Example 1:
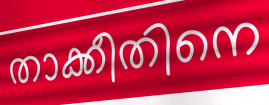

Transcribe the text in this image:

താക്കീതിനെ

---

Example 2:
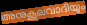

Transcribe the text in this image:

അനുകൂലവാദിയും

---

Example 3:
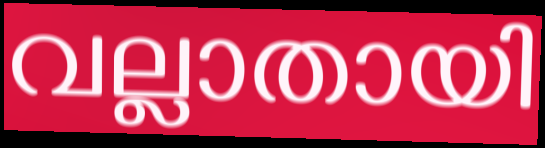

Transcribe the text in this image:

വല്ലാതായി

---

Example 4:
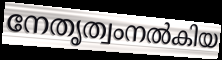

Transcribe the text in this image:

നേതൃത്വംനൽകിയ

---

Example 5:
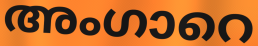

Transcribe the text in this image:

അംഗാറെ